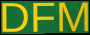
DFM